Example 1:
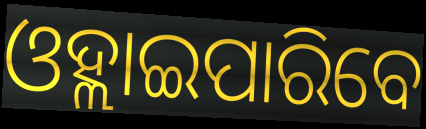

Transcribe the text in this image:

ଓହ୍ଲାଇପାରିବେ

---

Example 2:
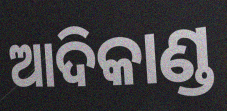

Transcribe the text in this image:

ଆଦିକାଣ୍ଡ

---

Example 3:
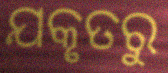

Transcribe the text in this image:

ଯକୃତରୁ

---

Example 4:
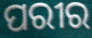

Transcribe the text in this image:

ପରୀର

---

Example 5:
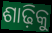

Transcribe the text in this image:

ଶାଢ଼ିକୁ